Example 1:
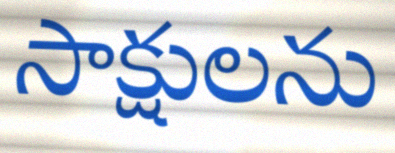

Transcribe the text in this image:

సాక్షులను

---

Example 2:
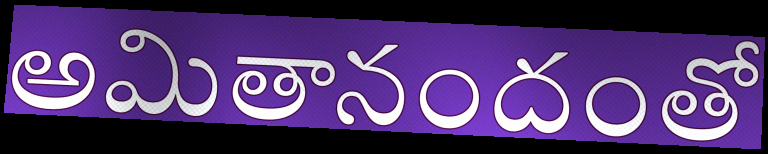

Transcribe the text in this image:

అమితానందంతో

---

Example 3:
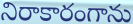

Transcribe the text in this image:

నిరాకారంగాను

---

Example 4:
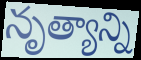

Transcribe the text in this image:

నృత్యాన్ని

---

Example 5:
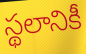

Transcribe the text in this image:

స్థలానికీ